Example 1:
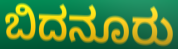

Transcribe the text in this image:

ಬಿದನೂರು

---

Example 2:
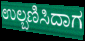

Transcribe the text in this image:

ಉಲ್ಬಣಿಸಿದಾಗ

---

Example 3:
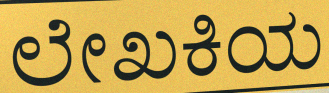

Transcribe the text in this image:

ಲೇಖಕಿಯ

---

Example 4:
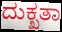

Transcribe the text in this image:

ದುಕ್ಖತಾ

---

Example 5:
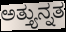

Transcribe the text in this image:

ಅತ್ತ್ಯುನ್ನತ